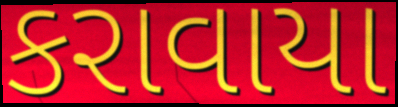
કરાવાયા